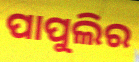
ପାପୁଲିର